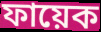
ফায়েক